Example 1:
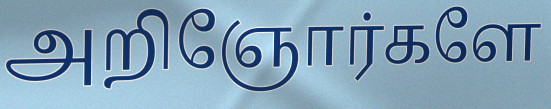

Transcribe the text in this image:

அறிஞோர்களே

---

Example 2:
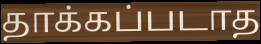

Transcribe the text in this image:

தாக்கப்படாத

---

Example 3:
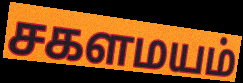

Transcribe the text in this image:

சகளமயம்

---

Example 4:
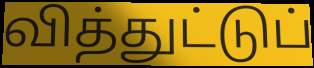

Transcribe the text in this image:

வித்துட்டுப்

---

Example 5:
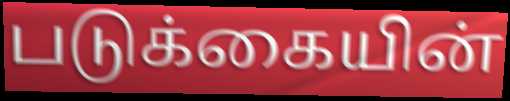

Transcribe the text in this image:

படுக்கையின்